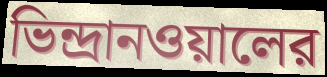
ভিন্দ্রানওয়ালের